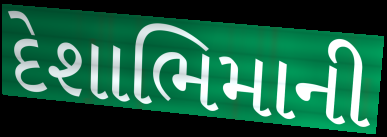
દેશાભિમાની